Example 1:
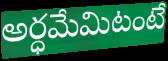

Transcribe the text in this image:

అర్ధమేమిటంటే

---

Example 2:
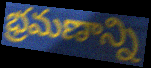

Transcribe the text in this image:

భ్రమణాన్ని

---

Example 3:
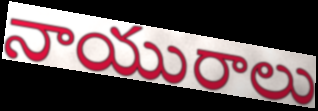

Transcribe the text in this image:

నాయురాలు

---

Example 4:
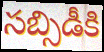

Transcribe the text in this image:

సబ్సిడీకి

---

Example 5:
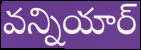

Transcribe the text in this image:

వన్నియార్